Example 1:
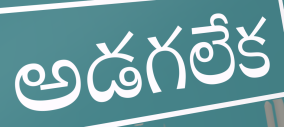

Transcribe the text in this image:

అడగలేక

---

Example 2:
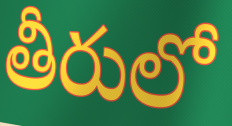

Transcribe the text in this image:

తీరులో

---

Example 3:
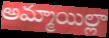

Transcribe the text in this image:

అమ్మాయిల్లా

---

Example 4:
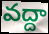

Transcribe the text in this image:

వద్దా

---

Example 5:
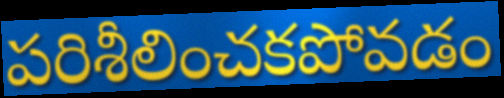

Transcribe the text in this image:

పరిశీలించకపోవడం